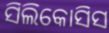
ସିଲିକୋସିସ